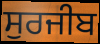
ਸੁਰਜੀਬ